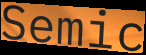
Semic